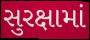
સુરક્ષામાં